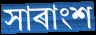
সাৰাংশ